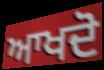
ਆਖਦੋ